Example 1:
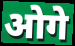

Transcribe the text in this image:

ओगे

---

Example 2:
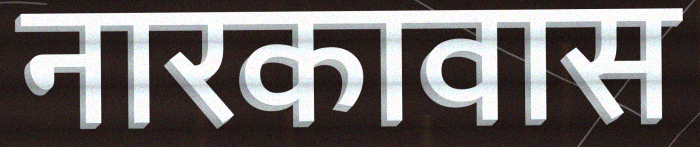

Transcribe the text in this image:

नारकावास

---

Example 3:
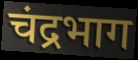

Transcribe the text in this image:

चंद्रभाग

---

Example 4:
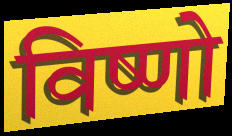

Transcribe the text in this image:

विष्णो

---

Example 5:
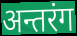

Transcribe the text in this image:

अन्तरंग